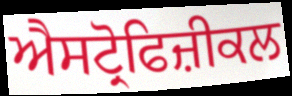
ਐਸਟ੍ਰੋਫਿਜ਼ੀਕਲ